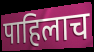
पाहिलाच